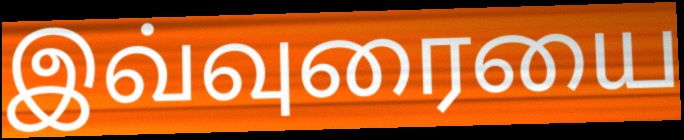
இவ்வுரையை